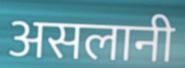
असलानी